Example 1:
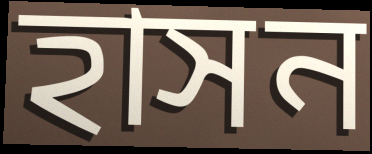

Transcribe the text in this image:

হাসন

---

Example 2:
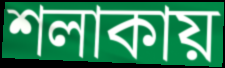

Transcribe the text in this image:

শলাকায়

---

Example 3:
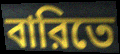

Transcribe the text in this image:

বারিতে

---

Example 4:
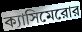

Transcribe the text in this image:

ক্যাসিমেরোর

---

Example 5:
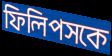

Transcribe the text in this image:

ফিলিপসকে